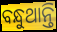
ବନ୍ଧୁଥାନ୍ତି